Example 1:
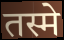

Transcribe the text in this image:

तस्मे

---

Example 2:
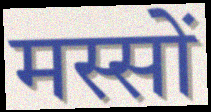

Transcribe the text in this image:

मस्सों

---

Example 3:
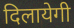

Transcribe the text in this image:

दिलायेगी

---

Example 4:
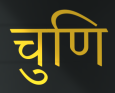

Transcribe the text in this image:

चुणि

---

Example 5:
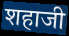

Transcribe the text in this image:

शहाजी